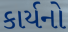
કાર્યનો